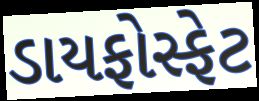
ડાયફોસ્ફેટ